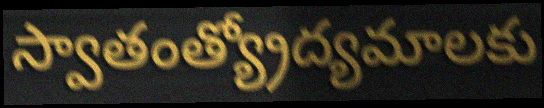
స్వాతంత్య్రోద్యమాలకు